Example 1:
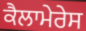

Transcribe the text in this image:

ਕੈਲਾਮੇਰੇਸ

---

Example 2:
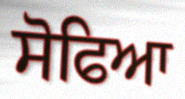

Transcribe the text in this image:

ਸੋਫਿਆ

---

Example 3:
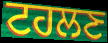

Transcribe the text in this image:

ਟਹਲਣ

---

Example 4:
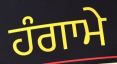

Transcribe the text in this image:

ਹੰਗਾਮੇ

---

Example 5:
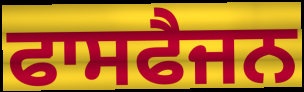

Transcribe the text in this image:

ਫਾਸਫੈਜਨ